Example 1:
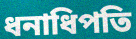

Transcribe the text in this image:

ধনাধিপতি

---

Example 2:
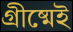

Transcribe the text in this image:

গ্রীষ্মেই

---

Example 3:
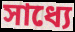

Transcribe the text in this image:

সাধ্যে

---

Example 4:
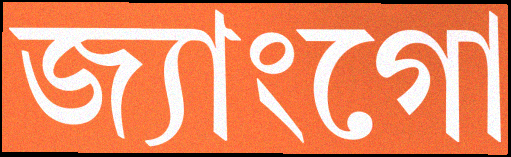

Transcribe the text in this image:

জ্যাংগো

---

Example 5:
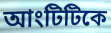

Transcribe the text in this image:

আংটিটিকে